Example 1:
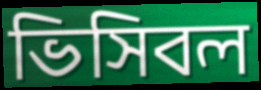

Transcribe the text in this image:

ভিসিবল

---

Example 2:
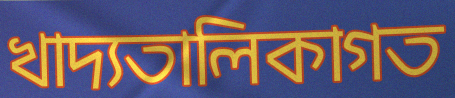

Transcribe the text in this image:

খাদ্যতালিকাগত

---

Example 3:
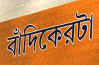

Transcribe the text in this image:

বাঁদিকেরটা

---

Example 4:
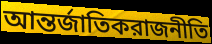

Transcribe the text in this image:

আন্তর্জাতিকরাজনীতি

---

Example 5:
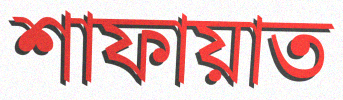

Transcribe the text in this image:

শাফায়াত